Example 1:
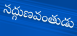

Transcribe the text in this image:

సద్గుణవంతుడు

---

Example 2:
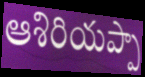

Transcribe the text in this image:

ఆశిరియప్పా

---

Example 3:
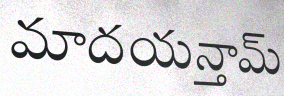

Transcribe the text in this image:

మాదయన్తామ్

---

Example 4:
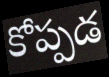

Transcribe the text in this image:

కోప్పడ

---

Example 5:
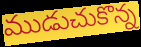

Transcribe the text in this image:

ముడుచుకొన్న